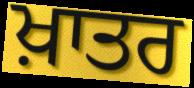
ਖ਼ਾਤਰ